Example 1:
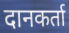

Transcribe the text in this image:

दानकर्ता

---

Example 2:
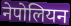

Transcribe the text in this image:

नेपोलियन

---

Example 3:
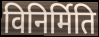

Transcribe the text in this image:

विनिर्मिति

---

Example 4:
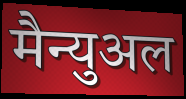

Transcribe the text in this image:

मैन्युअल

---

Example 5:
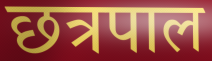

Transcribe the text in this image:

छत्रपाल